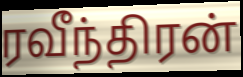
ரவீந்திரன்